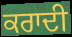
ਕਰਾਦੀ